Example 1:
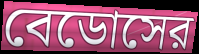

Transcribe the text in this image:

বেডোসের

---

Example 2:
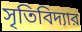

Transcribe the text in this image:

সৃতিবিদ্যার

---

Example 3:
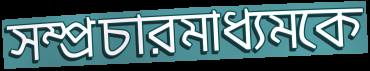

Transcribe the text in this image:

সম্প্রচারমাধ্যমকে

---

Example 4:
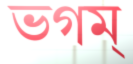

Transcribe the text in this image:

ভগম্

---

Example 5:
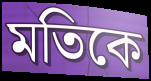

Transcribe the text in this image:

মতিকে